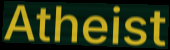
Atheist